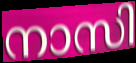
നാസി